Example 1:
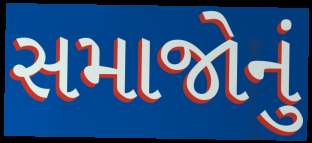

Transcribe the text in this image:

સમાજોનું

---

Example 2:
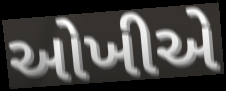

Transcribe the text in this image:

ઓખીએ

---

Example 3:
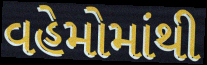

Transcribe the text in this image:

વહેમોમાંથી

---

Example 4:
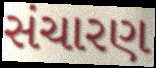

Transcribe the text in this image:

સંચારણ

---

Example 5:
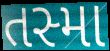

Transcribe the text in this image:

તસ્મા